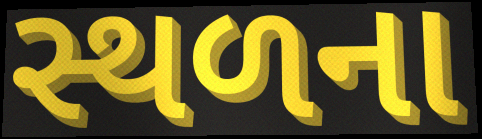
સ્થળના